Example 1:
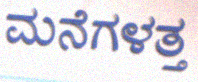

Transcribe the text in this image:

ಮನೆಗಳತ್ತ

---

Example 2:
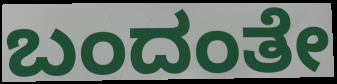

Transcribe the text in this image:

ಬಂದಂತೇ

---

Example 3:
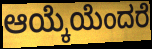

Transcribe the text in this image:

ಆಯ್ಕೆಯೆಂದರೆ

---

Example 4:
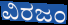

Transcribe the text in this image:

ವಿರಜಂ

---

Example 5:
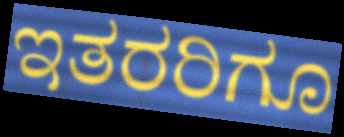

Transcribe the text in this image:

ಇತರರಿಗೂ